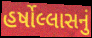
હર્ષોલ્લાસનું